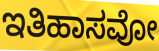
ಇತಿಹಾಸವೋ